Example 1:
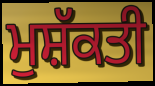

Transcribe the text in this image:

ਮੁਸ਼ੱਕਤੀ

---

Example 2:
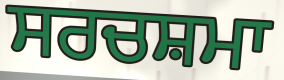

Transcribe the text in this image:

ਸਰਚਸ਼ਮਾ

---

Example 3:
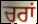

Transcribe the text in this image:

ਚਰਾਂ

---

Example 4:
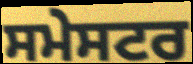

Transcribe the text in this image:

ਸਮੇਸਟਰ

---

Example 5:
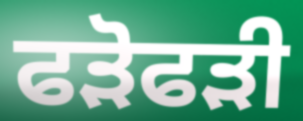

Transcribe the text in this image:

ਫੜੋਫੜੀ